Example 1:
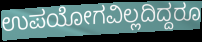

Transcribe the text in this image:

ಉಪಯೋಗವಿಲ್ಲದಿದ್ದರೂ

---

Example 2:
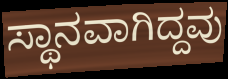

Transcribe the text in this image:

ಸ್ಥಾನವಾಗಿದ್ದವು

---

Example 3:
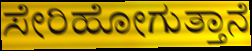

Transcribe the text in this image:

ಸೇರಿಹೋಗುತ್ತಾನೆ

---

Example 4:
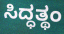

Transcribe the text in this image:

ಸಿದ್ಧತ್ಥಂ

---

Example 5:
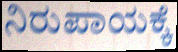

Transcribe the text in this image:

ನಿರುಪಾಯಕ್ಕೆ